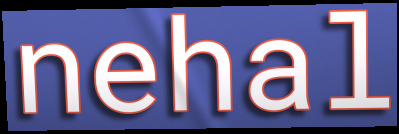
nehal